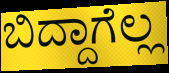
ಬಿದ್ದಾಗೆಲ್ಲ